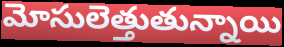
మోసులెత్తుతున్నాయి